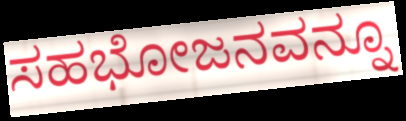
ಸಹಭೋಜನವನ್ನೂ